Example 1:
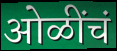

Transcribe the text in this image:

ओळींचं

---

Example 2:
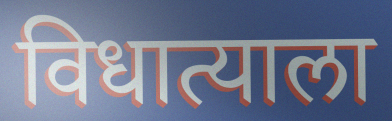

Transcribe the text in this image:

विधात्याला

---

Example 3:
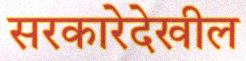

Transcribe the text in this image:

सरकारेदेखील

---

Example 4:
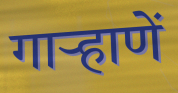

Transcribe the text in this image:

गार्‍हाणें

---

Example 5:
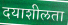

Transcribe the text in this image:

दयाशीलता